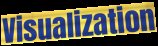
Visualization